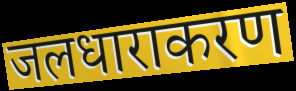
जलधाराकरण